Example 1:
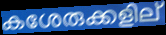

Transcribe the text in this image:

കശേരുക്കളില്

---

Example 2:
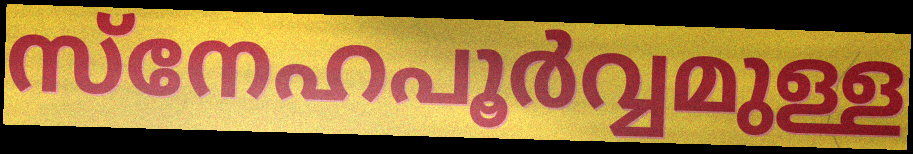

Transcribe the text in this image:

സ്നേഹപൂർവ്വമുള്ള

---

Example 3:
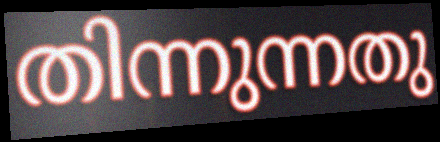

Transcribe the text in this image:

തിന്നുന്നതു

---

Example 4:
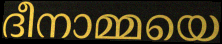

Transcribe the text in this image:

ദീനാമ്മയെ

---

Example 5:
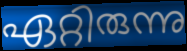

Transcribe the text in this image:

ഏറ്റിരുന്നു